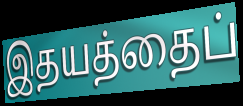
இதயத்தைப்